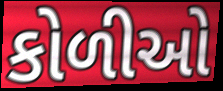
કોળીઓ